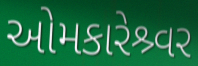
ઓમકારેશ્ર્વર